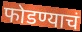
फोडण्याचं